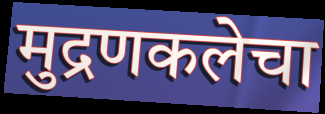
मुद्रणकलेचा